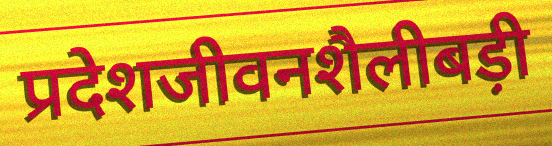
प्रदेशजीवनशैलीबड़ी